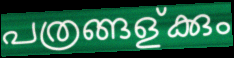
പത്രങ്ങള്ക്കും